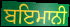
ਬਇਮਾਨੀ